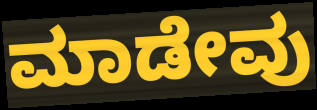
ಮಾಡೇವು